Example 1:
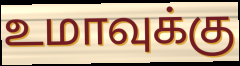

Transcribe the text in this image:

உமாவுக்கு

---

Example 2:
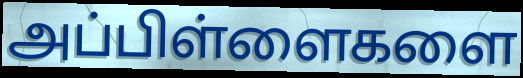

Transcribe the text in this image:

அப்பிள்ளைகளை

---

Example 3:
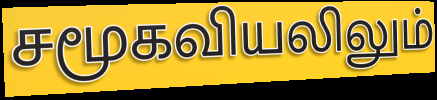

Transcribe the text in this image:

சமூகவியலிலும்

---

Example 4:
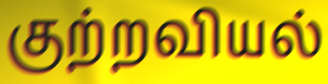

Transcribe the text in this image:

குற்றவியல்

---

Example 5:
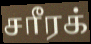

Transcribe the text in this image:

சரீரக்